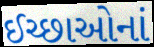
ઈચ્છાઓનાં